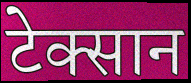
टेक्सान